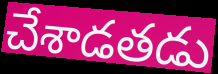
చేశాడతడు